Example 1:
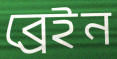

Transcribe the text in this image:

ব্ৰেইন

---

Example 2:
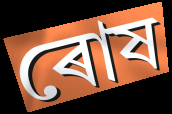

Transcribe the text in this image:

ৰোষ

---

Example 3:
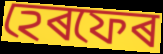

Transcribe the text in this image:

হেৰফেৰ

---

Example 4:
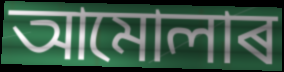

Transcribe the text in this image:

আমোলাৰ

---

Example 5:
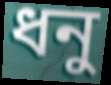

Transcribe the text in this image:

ধনু